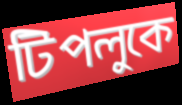
টিপলুকে